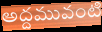
అద్దమువంటి